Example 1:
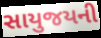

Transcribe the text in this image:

સાયુજયની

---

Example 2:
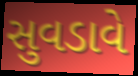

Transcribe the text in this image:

સુવડાવે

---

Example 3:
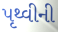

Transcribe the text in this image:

પૃથ્વીની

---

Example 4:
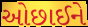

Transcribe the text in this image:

ઓછાઈને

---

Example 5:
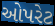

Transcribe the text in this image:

ઓપરેટ